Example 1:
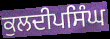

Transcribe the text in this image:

ਕੁਲਦੀਪਸਿੰਘ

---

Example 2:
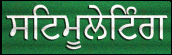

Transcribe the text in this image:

ਸਟਿਮੂਲੇਟਿੰਗ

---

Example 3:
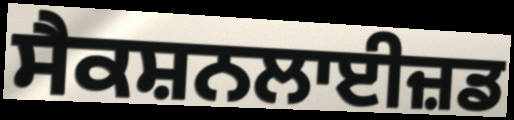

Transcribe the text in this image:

ਸੈਕਸ਼ਨਲਾਈਜ਼ਡ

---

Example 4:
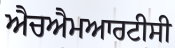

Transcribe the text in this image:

ਐਚਐਮਆਰਟੀਸੀ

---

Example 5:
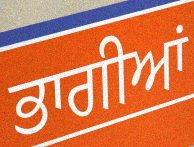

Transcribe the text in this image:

ਭਾਗੀਆਂ